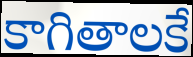
కాగితాలకే